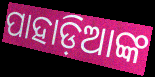
ପାହାଡ଼ିଆଙ୍କ